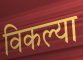
विकल्या